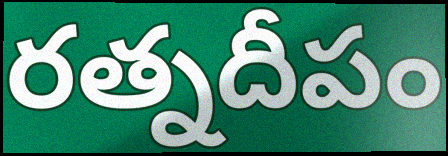
రత్నదీపం